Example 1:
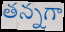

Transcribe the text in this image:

తన్నగా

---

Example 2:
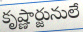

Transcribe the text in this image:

కృష్ణార్జునులే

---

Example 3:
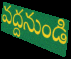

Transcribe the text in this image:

వద్దనుండి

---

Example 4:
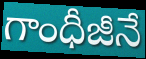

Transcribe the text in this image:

గాంధీజీనే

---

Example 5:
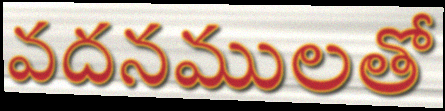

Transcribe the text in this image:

వదనములతో